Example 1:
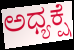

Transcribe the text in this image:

ಅಧ್ಯಕ್ಷೆ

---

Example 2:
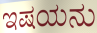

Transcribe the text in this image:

ಇಷಯನು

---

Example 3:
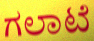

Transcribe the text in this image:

ಗಲಾಟೆ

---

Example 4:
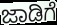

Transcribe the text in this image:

ಜಾಡಿಗೆ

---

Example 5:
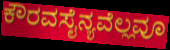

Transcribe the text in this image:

ಕೌರವಸೈನ್ಯವೆಲ್ಲವೂ